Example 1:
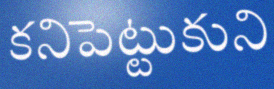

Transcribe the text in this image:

కనిపెట్టుకుని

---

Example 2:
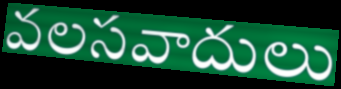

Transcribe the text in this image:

వలసవాదులు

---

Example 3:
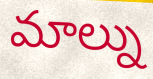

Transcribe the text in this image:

మాల్ను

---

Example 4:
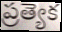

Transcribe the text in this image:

ప్రత్యెక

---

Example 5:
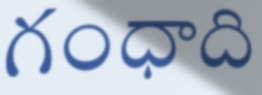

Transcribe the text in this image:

గంధాది